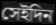
সেইদিন